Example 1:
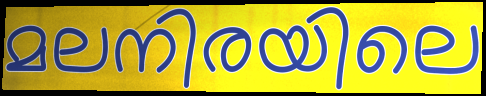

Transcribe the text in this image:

മലനിരയിലെ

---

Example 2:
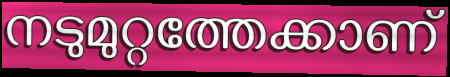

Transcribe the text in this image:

നടുമുറ്റത്തേക്കാണ്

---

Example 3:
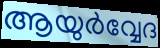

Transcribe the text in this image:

ആയുർവ്വേദ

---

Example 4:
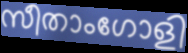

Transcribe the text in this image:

സീതാംഗോളി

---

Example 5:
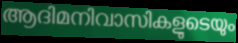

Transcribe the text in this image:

ആദിമനിവാസികളുടെയും